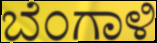
ಬೆಂಗಾಳಿ